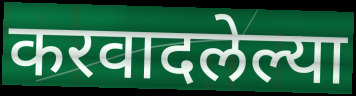
करवादलेल्या